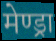
मेण्ड्रा